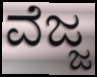
ವೆಜ್ಜ